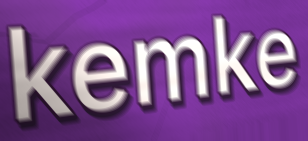
kemke